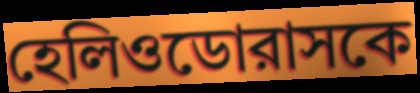
হেলিওডোরাসকে